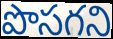
పొసగని